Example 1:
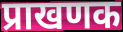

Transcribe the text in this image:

प्राखणक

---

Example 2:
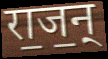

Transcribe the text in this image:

रा॒ज॒न्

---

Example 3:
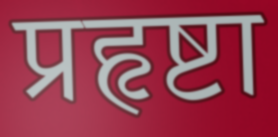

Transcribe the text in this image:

प्रहृष्टा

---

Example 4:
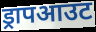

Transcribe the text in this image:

ड्रापआउट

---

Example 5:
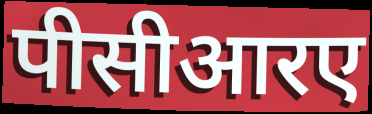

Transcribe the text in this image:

पीसीआरए